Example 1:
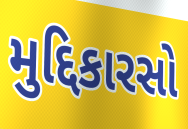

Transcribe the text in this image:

મુદ્દિકારસો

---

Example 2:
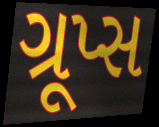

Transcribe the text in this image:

ગ્રૂપ્સ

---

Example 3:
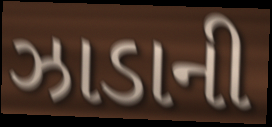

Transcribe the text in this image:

ઝાડાની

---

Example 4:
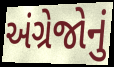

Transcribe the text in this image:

અંગ્રેજોનું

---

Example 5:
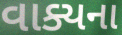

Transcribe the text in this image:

વાક્યના